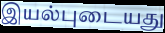
இயல்புடையது